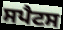
ਸਪੈਟਸ